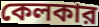
কেলকার